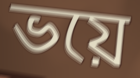
ভয়ে